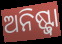
ଅନିଷ୍ଟ୍ୱା